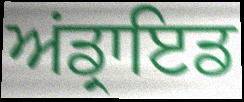
ਅਂਡ੍ਰਾਇਡ